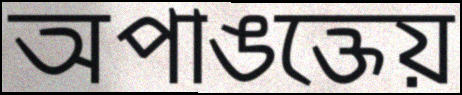
অপাঙক্তেয়